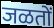
जळतों